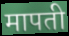
मापती